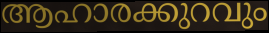
ആഹാരക്കുറവും